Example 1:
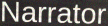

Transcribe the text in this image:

Narrator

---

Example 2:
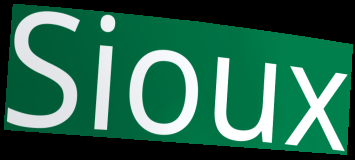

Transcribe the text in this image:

Sioux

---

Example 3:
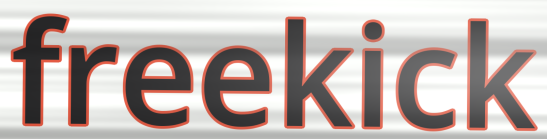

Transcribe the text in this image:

freekick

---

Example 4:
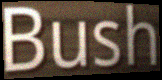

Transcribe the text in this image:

Bush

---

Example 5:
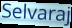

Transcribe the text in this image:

Selvaraj